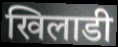
खिलाडी